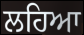
ਲਹਿਆ